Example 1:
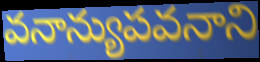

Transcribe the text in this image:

వనాన్యుపవనాని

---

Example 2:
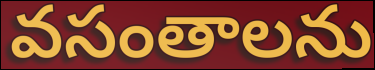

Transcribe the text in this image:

వసంతాలను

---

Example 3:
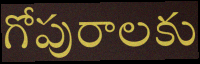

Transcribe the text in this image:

గోపురాలకు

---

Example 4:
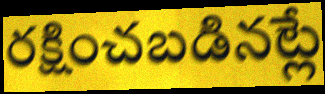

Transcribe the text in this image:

రక్షించబడినట్లే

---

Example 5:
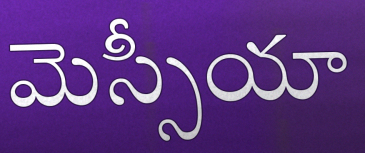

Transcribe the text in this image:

మెస్సీయా